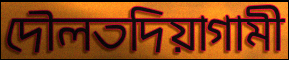
দৌলতদিয়াগামী